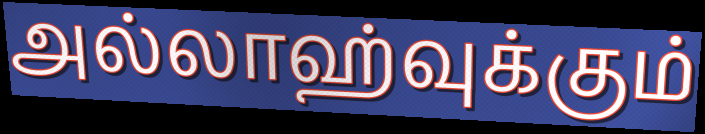
அல்லாஹ்வுக்கும்